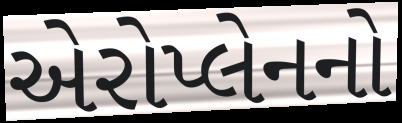
એરોપ્લેનનો